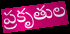
ప్రకృతుల